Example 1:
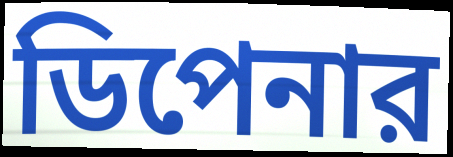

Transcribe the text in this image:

ডিপেনার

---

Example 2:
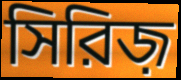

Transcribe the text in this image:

সিরিজ়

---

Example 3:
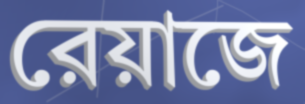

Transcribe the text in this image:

রেয়াজে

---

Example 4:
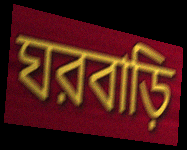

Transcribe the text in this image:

ঘরবাড়ি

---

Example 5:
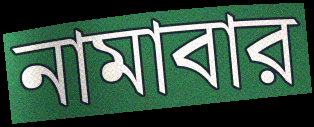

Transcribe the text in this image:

নামাবার